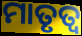
ମାତୃତ୍ୱ